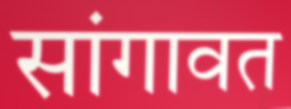
सांगावत